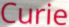
Curie